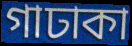
গাঢাকা